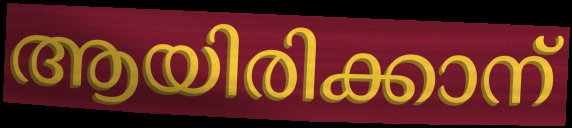
ആയിരിക്കാന്